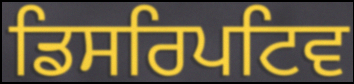
ਡਿਸਰਿਪਟਿਵ